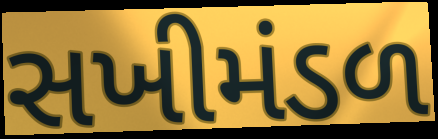
સખીમંડળ